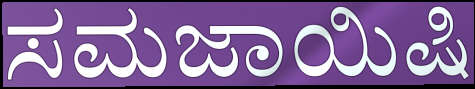
ಸಮಜಾಯಿಷಿ